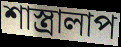
শাস্ত্রালাপ